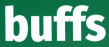
buffs